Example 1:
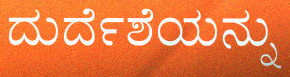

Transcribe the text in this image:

ದುರ್ದೆಶೆಯನ್ನು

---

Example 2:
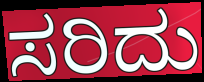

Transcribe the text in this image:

ಸರಿದು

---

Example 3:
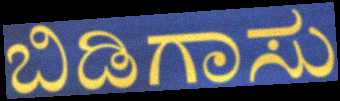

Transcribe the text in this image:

ಬಿಡಿಗಾಸು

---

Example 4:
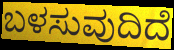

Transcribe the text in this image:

ಬಳಸುವುದಿದೆ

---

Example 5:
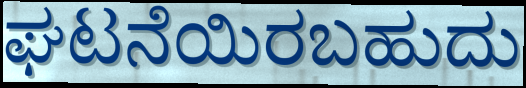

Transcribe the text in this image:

ಘಟನೆಯಿರಬಹುದು